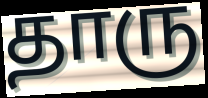
தாரு